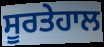
ਸੂਰਤੇਹਾਲ